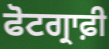
ਫੋਟਗ੍ਰਾਫ਼ੀ